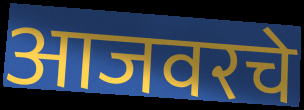
आजवरचे